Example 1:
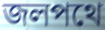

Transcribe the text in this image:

জলপথে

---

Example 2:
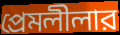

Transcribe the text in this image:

প্রেমলীলার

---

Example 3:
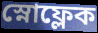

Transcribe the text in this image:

স্নোফ্লেক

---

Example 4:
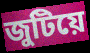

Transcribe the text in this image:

জুটিয়ে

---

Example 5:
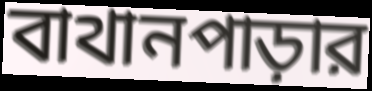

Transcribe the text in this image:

বাথানপাড়ার